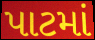
પાટમાં